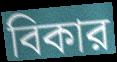
বিকার